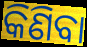
କିଣିବା